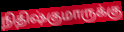
நிதிஷ்குமாருக்கு